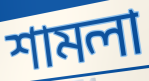
শামলা